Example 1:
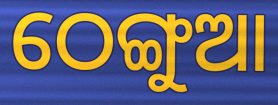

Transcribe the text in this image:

ଠେଙ୍ଗୁଆ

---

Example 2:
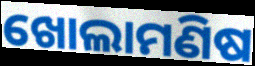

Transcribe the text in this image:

ଖୋଲାମଣିଷ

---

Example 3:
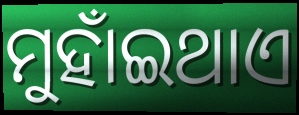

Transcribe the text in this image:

ମୁହାଁଇଥାଏ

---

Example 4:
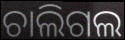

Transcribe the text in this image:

ଚାଲିଗଲ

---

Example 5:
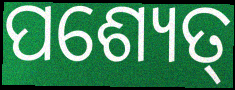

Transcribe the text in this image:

ପଶ୍ୟେତ୍